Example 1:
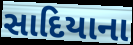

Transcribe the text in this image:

સાદિયાના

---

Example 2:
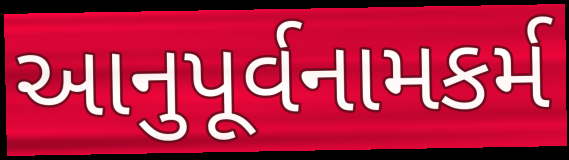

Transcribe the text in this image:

આનુપૂર્વનામકર્મ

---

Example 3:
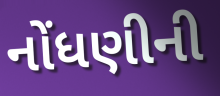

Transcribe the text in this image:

નોંધણીની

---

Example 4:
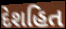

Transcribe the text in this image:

દેશહિત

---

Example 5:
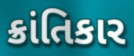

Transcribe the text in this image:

ક્રાંતિકાર